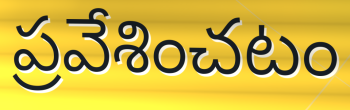
ప్రవేశించటం